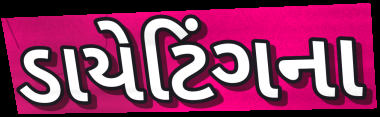
ડાયેટિંગના